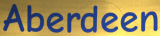
Aberdeen